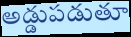
అడ్డుపడుతూ